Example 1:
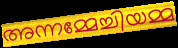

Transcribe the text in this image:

അന്നമ്മേച്ചിയമ്മ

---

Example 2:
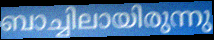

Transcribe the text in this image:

ബാച്ചിലായിരുന്നു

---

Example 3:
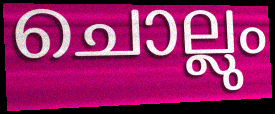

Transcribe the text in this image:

ചൊല്ലും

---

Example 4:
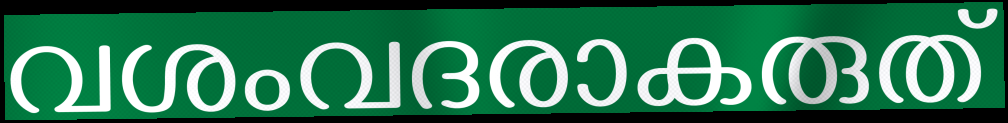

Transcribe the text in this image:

വശംവദരാകരുത്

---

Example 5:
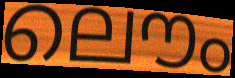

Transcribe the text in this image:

ലൌം